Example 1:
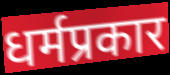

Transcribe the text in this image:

धर्मप्रकार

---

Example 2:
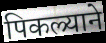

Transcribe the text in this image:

पिकल्याने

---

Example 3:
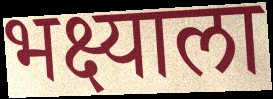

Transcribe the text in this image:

भक्ष्याला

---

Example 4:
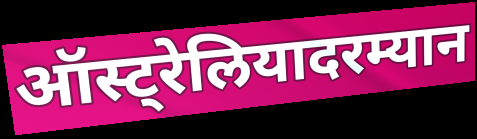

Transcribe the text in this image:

ऑस्ट्रेलियादरम्यान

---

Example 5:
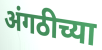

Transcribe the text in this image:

अंगठीच्या